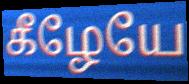
கீழேயே